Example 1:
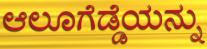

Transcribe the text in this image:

ಆಲೂಗೆಡ್ಡೆಯನ್ನು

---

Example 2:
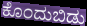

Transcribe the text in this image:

ಕೊಂದುಬಿಡು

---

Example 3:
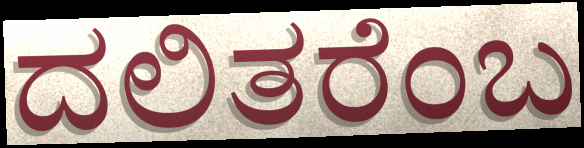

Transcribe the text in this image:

ದಲಿತರೆಂಬ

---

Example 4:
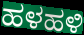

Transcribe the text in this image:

ಹಳಹಳಿ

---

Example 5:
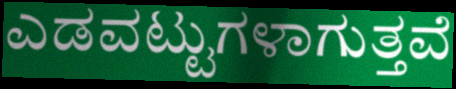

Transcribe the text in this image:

ಎಡವಟ್ಟುಗಳಾಗುತ್ತವೆ